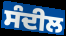
ਸੰਦੀਲ